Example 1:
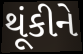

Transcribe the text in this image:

થૂંકીને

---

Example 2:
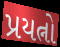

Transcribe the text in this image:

પ્રયત્નો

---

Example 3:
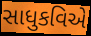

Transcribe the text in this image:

સાધુકવિએ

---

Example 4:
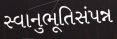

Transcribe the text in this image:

સ્વાનુભૂતિસંપન્ન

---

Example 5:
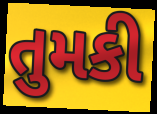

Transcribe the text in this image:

તુમકી